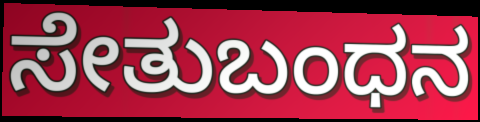
ಸೇತುಬಂಧನ